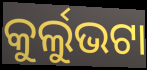
କୁର୍ଲୁଭଟା